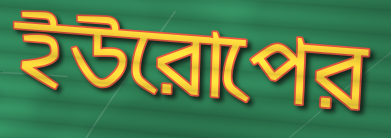
ইউরোপের